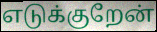
எடுக்குறேன்